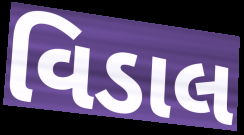
વિડાલ